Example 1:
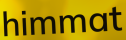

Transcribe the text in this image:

himmat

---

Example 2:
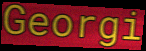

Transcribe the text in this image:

Georgi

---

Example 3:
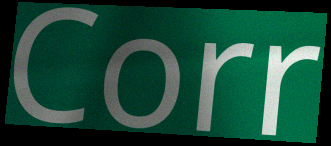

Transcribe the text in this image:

Corr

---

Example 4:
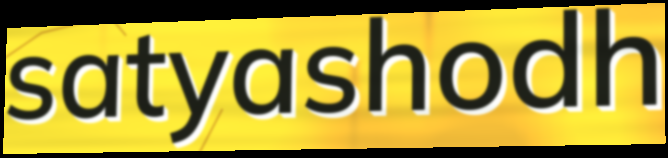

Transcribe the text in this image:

satyashodh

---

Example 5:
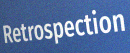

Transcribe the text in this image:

Retrospection